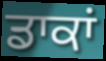
ਡਾਕਾਂ